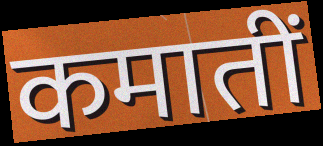
कमातीं